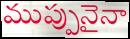
ముప్పునైనా